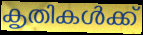
കൃതികൾക്ക്